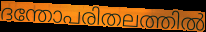
ദന്തോപരിതലത്തിൽ